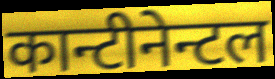
कान्टीनेन्टल